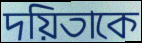
দয়িতাকে